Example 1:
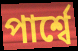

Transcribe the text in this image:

পার্শ্বে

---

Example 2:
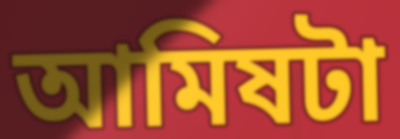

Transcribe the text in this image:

আমিষটা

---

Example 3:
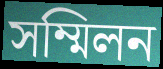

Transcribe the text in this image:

সম্মিলন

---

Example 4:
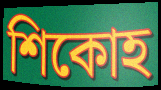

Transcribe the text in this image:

শিকোহ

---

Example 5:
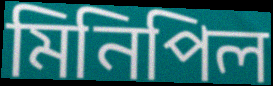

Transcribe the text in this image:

মিনিপিল